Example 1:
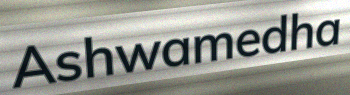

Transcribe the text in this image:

Ashwamedha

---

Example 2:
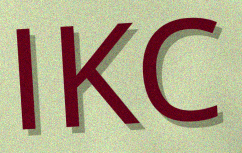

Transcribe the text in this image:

IKC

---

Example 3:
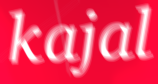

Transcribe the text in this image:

kajal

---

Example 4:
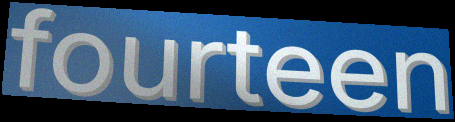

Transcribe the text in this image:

fourteen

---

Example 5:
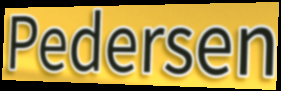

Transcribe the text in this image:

Pedersen